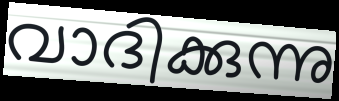
വാദിക്കുന്നു